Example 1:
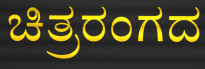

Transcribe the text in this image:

ಚಿತ್ರರಂಗದ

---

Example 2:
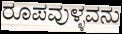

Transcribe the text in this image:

ರೂಪವುಳ್ಳವನು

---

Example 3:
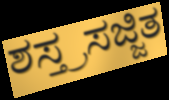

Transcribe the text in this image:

ಶಸ್ತ್ರಸಜ್ಜಿತ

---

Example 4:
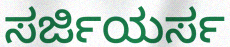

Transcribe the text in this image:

ಸರ್ಜಿಯರ್ಸ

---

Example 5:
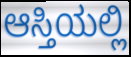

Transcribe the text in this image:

ಆಸ್ತಿಯಲ್ಲಿ